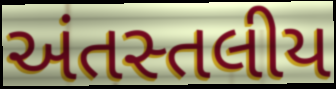
અંતસ્તલીય